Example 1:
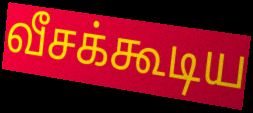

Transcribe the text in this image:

வீசக்கூடிய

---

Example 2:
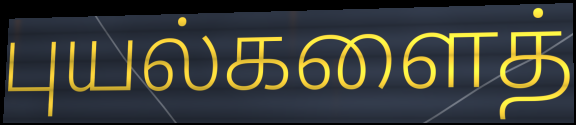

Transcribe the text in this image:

புயல்களைத்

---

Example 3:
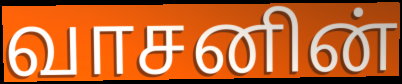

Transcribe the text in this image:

வாசனின்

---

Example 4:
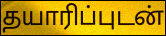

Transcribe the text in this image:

தயாரிப்புடன்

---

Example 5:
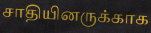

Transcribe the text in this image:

சாதியினருக்காக